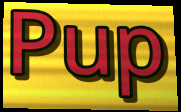
Pup